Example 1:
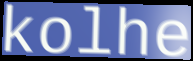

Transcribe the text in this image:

kolhe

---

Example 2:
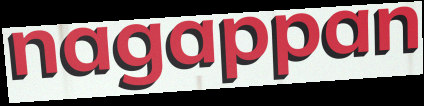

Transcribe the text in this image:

nagappan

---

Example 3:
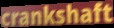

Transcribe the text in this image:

crankshaft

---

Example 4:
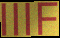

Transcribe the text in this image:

IIIF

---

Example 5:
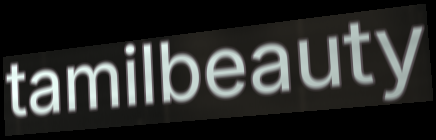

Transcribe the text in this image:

tamilbeauty